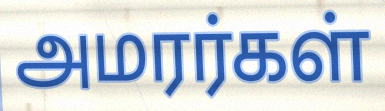
அமரர்கள்